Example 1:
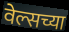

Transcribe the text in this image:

वेल्सच्या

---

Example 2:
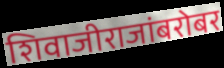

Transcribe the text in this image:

शिवाजीराजांबरोबर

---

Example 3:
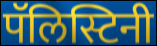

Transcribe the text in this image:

पॅलिस्टिनी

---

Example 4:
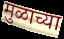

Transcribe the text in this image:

मुळाच्या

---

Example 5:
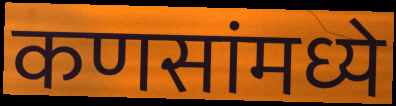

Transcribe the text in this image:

कणसांमध्ये